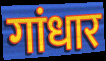
गांधार